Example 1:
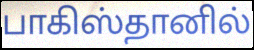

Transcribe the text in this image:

பாகிஸ்தானில்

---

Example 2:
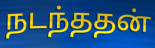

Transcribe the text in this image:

நடந்ததன்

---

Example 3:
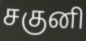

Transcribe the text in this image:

சகுனி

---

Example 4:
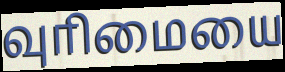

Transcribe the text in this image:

வுரிமையை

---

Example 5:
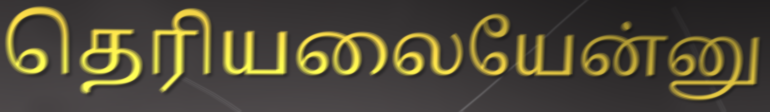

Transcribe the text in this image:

தெரியலையேன்னு